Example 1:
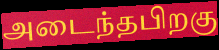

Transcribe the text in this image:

அடைந்தபிறகு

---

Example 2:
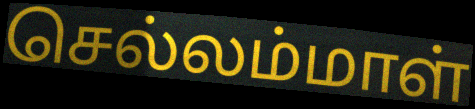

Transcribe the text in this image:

செல்லம்மாள்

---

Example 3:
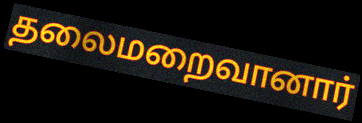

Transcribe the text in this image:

தலைமறைவானார்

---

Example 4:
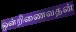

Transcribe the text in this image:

ஒன்றிணைவதன்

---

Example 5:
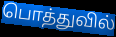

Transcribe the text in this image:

பொத்துவில்